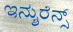
ಇನ್ಶುರೆನ್ಸ್